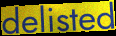
delisted